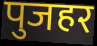
पुजहर